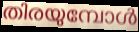
തിരയുമ്പോൾ